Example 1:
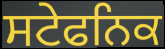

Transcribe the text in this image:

ਸਟੇਫਨਿਕ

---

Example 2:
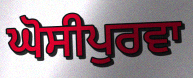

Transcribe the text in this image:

ਘੋਸੀਪੁਰਵਾ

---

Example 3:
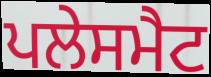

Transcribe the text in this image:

ਪਲੇਸਮੈਟ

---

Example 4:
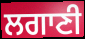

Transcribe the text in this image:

ਲਗਾਣੀ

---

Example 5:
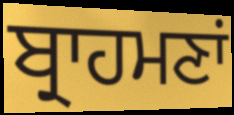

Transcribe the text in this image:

ਬ੍ਰਾਹਮਣਾਂ